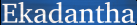
Ekadantha